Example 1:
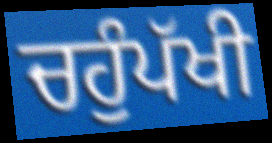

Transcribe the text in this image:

ਚਹੁੰਪੱਖੀ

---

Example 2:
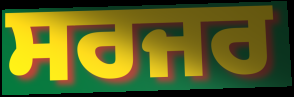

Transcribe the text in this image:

ਸਰਜਰ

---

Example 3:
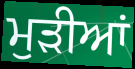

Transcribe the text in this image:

ਮੁੜੀਆਂ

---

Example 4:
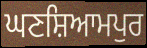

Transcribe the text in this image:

ਘਣਸ਼ਿਆਮਪੁਰ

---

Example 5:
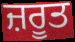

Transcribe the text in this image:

ਜ਼ਰੂਤ